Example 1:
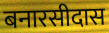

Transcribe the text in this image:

बनारसीदास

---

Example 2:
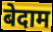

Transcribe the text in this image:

बेदाम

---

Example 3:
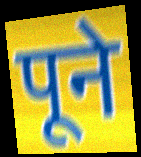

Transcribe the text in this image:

पूने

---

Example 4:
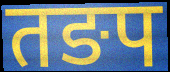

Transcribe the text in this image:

तङप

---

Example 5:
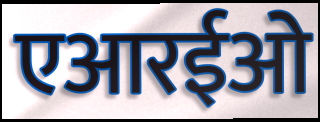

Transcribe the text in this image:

एआरईओ